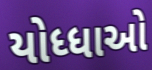
યોધ્ધાઓ